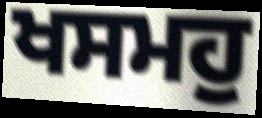
ਖਸਮਹੁ